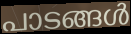
പാടങ്ങൾ